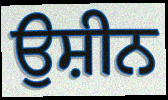
ਉਸ਼ੀਨ